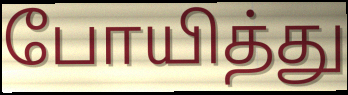
போயித்து